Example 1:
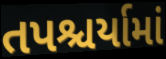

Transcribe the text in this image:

તપશ્ચર્યામાં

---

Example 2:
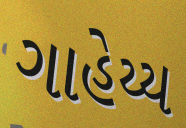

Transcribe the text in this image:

ગાહેય્ય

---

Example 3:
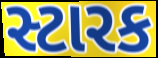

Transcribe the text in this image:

સ્ટારક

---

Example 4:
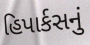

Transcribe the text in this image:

હિપાર્કસનું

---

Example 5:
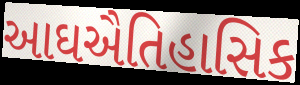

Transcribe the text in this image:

આઘઐતિહાસિક